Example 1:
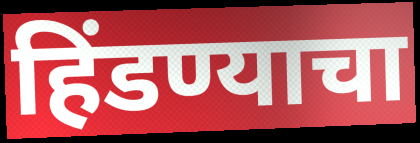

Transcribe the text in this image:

हिंडण्याचा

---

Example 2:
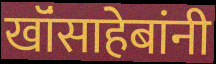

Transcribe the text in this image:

खॉंसाहेबांनी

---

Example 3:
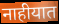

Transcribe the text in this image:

नाहीयात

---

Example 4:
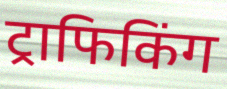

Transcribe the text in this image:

ट्राफिकिंग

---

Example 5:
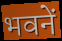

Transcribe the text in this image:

भवनें